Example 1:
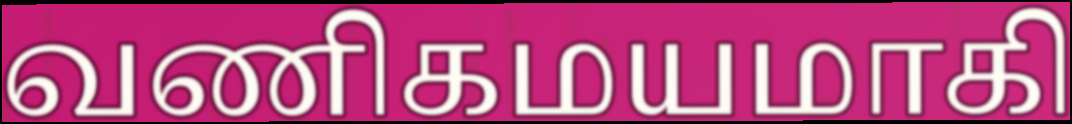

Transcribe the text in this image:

வணிகமயமாகி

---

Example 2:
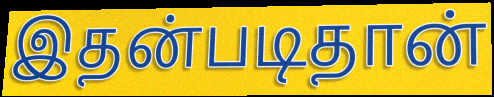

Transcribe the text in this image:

இதன்படிதான்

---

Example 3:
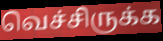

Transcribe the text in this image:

வெச்சிருக்க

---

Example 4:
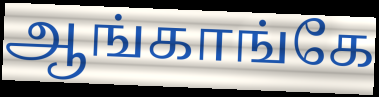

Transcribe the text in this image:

ஆங்காங்கே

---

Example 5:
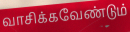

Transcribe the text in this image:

வாசிக்கவேண்டும்